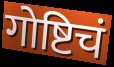
गोष्टिचं